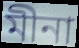
মীনা